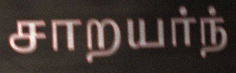
சாறயர்ந்